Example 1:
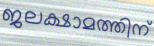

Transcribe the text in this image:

ജലക്ഷാമത്തിന്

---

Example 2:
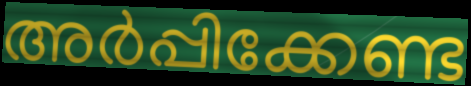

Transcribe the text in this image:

അർപ്പിക്കേണ്ട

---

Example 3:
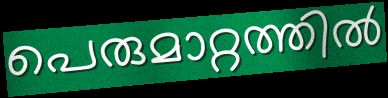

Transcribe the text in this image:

പെരുമാറ്റത്തിൽ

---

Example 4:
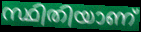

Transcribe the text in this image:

സ്ഥിതിയാണ്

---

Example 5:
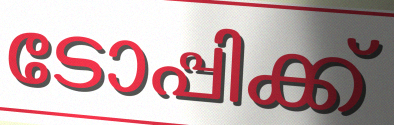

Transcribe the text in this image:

ടോപ്പിക്ക്